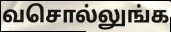
வசொல்லுங்க